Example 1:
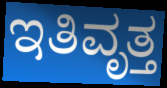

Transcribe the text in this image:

ಇತಿವೃತ್ತ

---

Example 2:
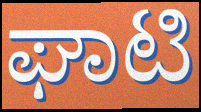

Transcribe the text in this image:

ಘಾಟಿ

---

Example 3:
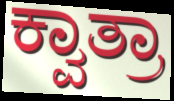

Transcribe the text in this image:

ಕ್ವಾತ್ರಾ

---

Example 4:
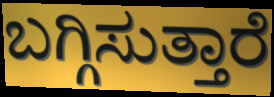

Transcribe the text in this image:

ಬಗ್ಗಿಸುತ್ತಾರೆ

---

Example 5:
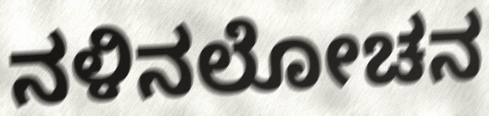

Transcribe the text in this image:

ನಳಿನಲೋಚನ